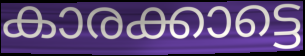
കാരക്കാട്ടെ